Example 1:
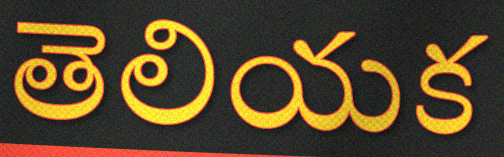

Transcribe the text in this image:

తెలియక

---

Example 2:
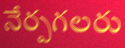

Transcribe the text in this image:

నేర్పగలరు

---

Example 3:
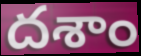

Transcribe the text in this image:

దశాం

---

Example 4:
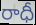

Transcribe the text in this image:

రాధీ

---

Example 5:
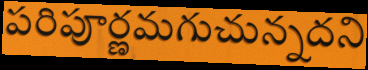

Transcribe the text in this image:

పరిపూర్ణమగుచున్నదని